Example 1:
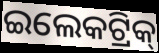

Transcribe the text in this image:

ଇଲେକଟ୍ରିକ୍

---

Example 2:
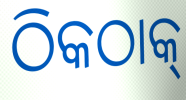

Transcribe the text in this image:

ଠିକଠାକ୍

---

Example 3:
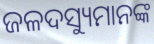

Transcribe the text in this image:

ଜଳଦସ୍ୟୁମାନଙ୍କ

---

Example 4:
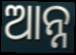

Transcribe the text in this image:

ଆନ୍ନ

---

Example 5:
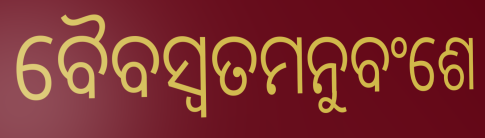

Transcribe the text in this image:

ବୈବସ୍ଵତମନୁବଂଶେ